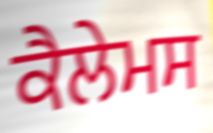
ਕੈਲੇਮਸ